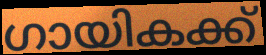
ഗായികക്ക്